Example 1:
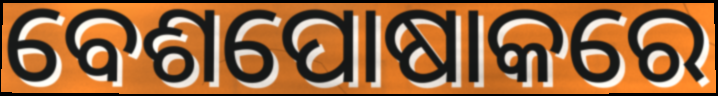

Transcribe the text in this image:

ବେଶପୋଷାକରେ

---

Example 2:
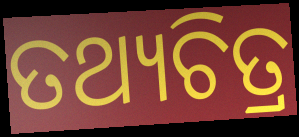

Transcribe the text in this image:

ତଥ୍ୟଚିତ୍ର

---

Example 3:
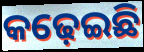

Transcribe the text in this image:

କଢ଼େଇଛି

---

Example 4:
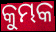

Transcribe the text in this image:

କୁମ୍ଭକ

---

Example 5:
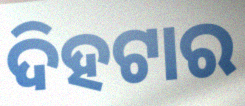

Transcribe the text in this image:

ଦିହଟାର